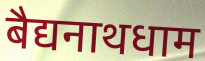
बैद्यनाथधाम